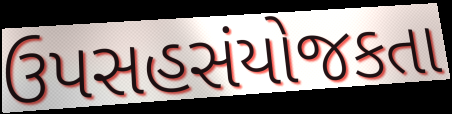
ઉપસહસંયોજકતા